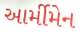
આર્મીમેન